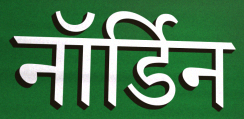
नॉर्डिन